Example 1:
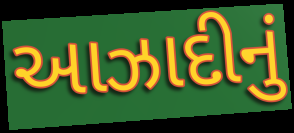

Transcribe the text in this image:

આઝાદીનું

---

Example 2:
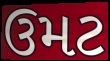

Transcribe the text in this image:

ઉમટ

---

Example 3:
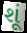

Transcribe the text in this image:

શૂં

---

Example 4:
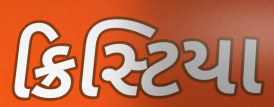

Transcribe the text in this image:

ક્રિસ્ટિયા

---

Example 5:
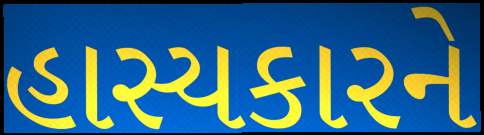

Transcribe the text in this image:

હાસ્યકારને